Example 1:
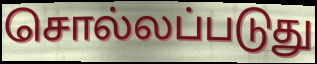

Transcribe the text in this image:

சொல்லப்படுது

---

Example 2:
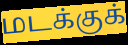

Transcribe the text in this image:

மடக்குக்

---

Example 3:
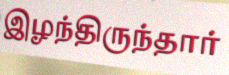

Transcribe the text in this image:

இழந்திருந்தார்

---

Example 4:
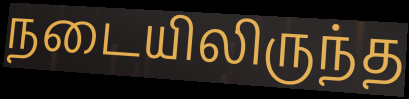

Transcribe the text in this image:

நடையிலிருந்த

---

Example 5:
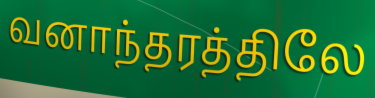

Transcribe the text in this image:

வனாந்தரத்திலே